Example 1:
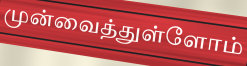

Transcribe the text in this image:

முன்வைத்துள்ளோம்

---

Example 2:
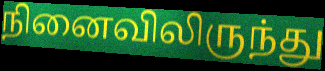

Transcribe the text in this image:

நினைவிலிருந்து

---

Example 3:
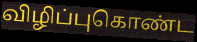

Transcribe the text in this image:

விழிப்புகொண்ட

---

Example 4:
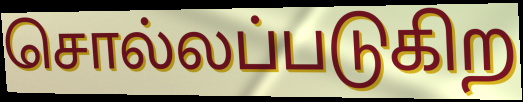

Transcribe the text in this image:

சொல்லப்படுகிற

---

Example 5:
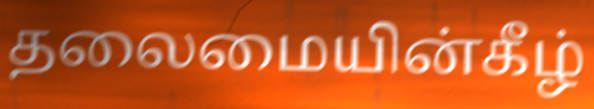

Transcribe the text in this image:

தலைமையின்கீழ்